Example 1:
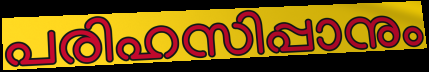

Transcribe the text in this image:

പരിഹസിപ്പാനും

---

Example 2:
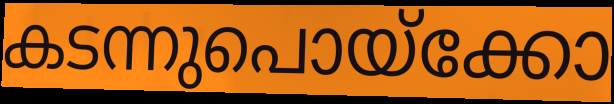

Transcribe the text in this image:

കടന്നുപൊയ്ക്കോ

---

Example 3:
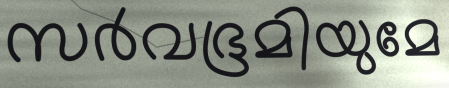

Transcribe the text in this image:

സർവഭൂമിയുമേ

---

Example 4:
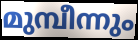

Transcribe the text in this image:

മുമ്പീന്നും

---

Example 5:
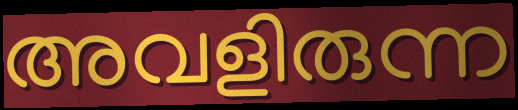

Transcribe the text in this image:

അവളിരുന്ന